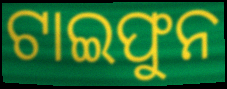
ଟାଇଫୁନ